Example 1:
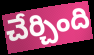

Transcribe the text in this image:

చేర్చింది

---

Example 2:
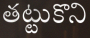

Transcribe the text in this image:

తట్టుకొని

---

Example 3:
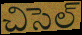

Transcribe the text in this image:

చిసెల్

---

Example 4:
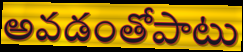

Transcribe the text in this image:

అవడంతోపాటు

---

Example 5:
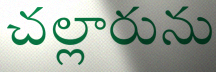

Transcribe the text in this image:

చల్లారును